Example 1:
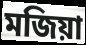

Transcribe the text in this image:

মজিয়া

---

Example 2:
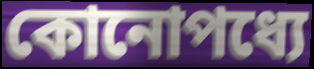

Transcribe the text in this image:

কোনোপধ্যে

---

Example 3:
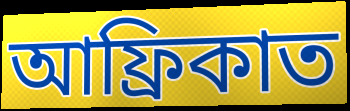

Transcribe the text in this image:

আফ্ৰিকাত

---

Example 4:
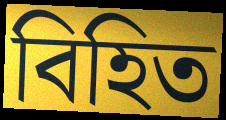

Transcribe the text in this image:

বিহিত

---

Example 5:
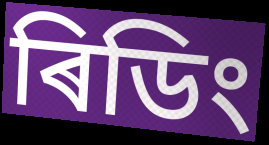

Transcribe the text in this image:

ৰিডিং